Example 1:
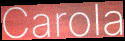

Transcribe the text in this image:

Carola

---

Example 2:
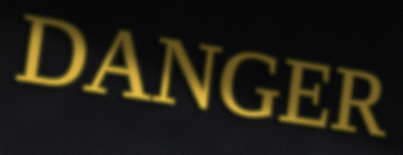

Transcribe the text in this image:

DANGER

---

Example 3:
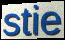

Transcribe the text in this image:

stie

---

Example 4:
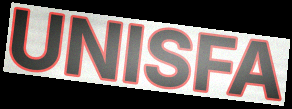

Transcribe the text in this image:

UNISFA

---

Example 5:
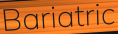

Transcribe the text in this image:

Bariatric